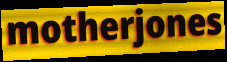
motherjones